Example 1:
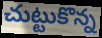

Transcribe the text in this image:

చుట్టుకొన్న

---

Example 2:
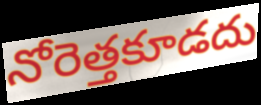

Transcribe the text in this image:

నోరెత్తకూడదు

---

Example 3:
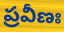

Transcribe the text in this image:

ప్రవీణః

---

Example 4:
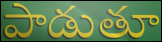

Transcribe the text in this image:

పాడుతూ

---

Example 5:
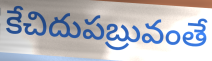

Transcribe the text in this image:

కేచిదుపబ్రువంతే